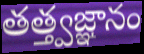
తత్త్వజ్ఞానం